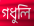
গধুলি